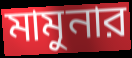
মামুনার